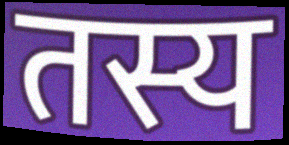
तस्य